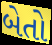
બેતો